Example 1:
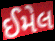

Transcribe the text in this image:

ઈમેલ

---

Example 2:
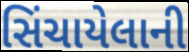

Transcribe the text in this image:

સિંચાયેલાની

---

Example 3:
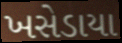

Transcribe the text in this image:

ખસેડાયા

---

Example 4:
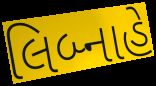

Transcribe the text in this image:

લિબ્નાહે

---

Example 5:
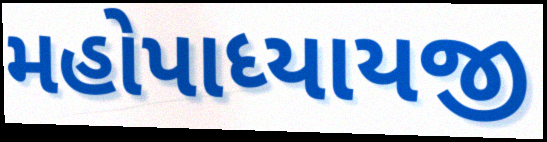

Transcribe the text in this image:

મહોપાધ્યાયજી